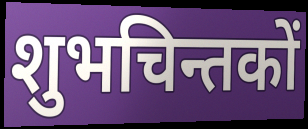
शुभचिन्तकों